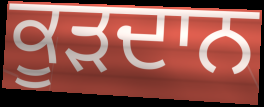
ਕੂੜਦਾਨ